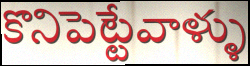
కొనిపెట్టేవాళ్ళు